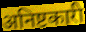
अनिष्टकारी